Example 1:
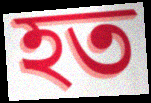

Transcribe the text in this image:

হত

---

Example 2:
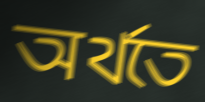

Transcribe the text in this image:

অৰ্থতে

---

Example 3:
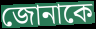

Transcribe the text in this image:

জোনাকে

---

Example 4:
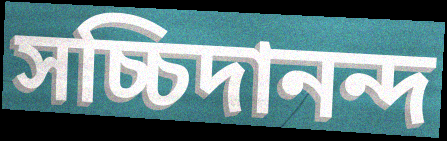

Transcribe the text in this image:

সচ্চিদানন্দ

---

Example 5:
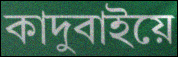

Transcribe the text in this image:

কাদুবাইয়ে